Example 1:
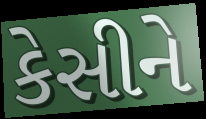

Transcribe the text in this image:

કેસીને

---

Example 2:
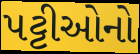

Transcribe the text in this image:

પટ્ટીઓનો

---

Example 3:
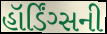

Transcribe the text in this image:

હૉર્ડિંગ્સની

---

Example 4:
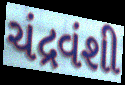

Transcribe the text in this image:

ચંદ્રવંશી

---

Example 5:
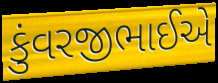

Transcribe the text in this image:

કુંવરજીભાઈએ